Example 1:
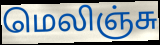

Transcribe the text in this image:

மெலிஞ்சு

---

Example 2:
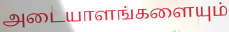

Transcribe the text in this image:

அடையாளங்களையும்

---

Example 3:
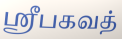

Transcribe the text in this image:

ஸ்ரீபகவத்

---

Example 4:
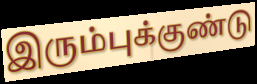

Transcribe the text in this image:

இரும்புக்குண்டு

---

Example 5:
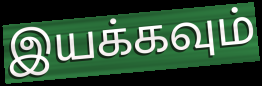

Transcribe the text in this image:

இயக்கவும்